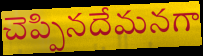
చెప్పినదేమనగా